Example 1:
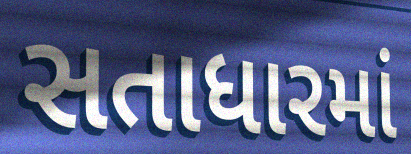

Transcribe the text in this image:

સતાધારમાં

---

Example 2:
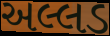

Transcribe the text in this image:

અલ્લડ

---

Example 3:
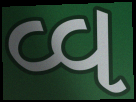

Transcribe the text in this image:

વ્વ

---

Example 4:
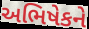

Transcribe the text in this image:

અભિષેકને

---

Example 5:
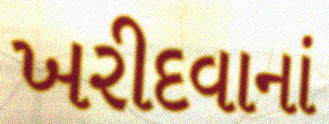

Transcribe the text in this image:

ખરીદવાનાં